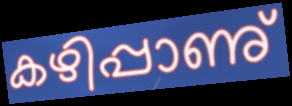
കഴിപ്പാണു്